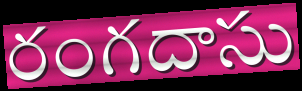
రంగదాసు